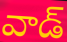
వాడ్